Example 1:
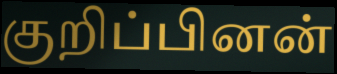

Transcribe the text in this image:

குறிப்பினன்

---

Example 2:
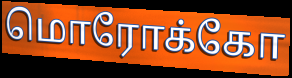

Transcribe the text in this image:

மொரோக்கோ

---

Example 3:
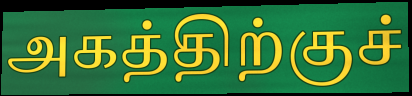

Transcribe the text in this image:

அகத்திற்குச்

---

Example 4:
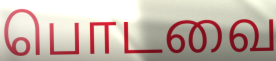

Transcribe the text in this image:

பொடவை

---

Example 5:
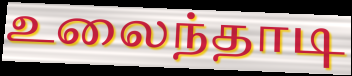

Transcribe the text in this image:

உலைந்தாடி